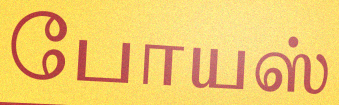
போயஸ்